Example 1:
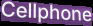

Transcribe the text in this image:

Cellphone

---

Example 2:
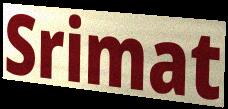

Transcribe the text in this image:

Srimat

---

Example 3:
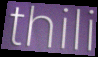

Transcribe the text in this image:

thili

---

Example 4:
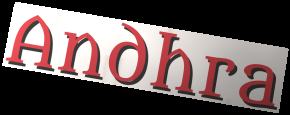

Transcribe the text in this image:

Andhra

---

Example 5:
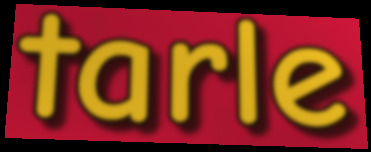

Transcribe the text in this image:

tarle